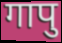
गापु